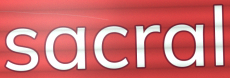
sacral